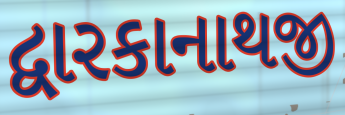
દ્વારકાનાથજી